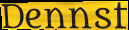
Dennst